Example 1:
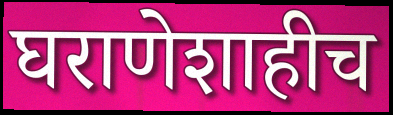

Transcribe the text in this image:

घराणेशाहीच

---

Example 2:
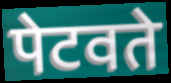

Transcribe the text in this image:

पेटवते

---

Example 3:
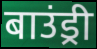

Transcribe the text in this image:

बाउंड्री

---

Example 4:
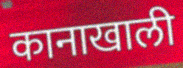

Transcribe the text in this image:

कानाखाली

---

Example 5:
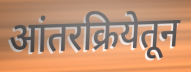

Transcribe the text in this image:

आंतरक्रियेतून